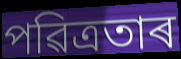
পৱিত্ৰতাৰ